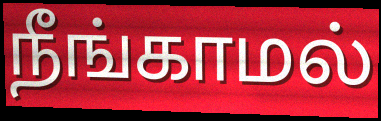
நீங்காமல்